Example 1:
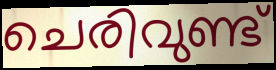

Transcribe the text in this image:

ചെരിവുണ്ട്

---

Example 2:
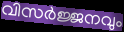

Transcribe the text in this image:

വിസർജ്ജനവും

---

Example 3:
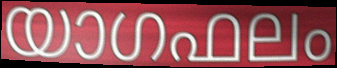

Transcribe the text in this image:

യാഗഫലം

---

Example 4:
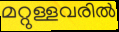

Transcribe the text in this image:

മറ്റുള്ളവരിൽ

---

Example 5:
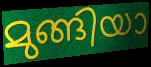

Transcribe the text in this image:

മുങ്ങിയാ